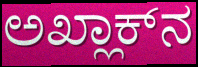
ಅಖ್ಲಾಕ್‍ನ